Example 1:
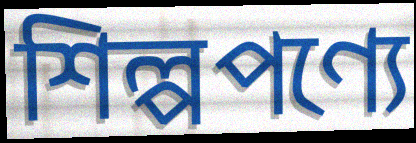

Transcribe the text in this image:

শিল্পপণ্যে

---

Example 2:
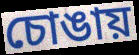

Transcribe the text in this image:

চোঙায়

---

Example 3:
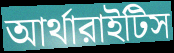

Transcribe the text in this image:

আর্থারাইটিস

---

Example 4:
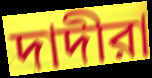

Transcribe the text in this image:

দাদীরা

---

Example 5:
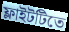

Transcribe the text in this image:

ফ্লাইটটিতে